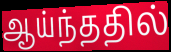
ஆய்ந்ததில்